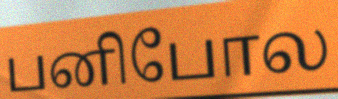
பனிபோல